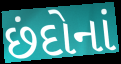
છંદોનાં